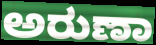
ಅರುಣಾ